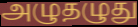
அழுதழுது